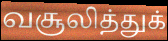
வசூலித்துக்